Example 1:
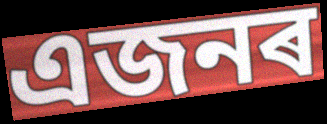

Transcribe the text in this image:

এজনৰ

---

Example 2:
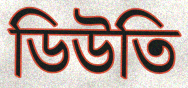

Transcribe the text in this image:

ডিউতি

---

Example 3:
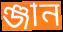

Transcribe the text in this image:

ঞ্জান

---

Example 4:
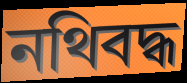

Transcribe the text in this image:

নথিবদ্ধ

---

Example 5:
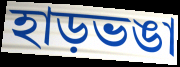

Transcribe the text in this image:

হাড়ভঙা